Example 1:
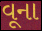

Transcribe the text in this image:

વૂના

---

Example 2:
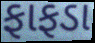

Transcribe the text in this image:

ફાફડા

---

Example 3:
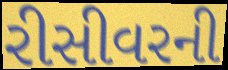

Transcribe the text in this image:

રીસીવરની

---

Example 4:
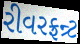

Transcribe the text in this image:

રીવરફ્રન્ર્ટ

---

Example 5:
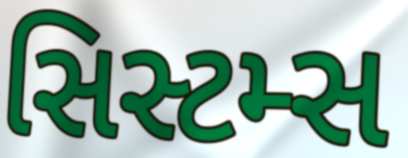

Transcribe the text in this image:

સિસ્ટમ્સ